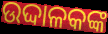
ଉଦ୍ଦାଳକଙ୍କ